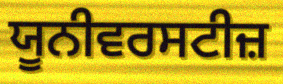
ਯੂਨੀਵਰਸਟੀਜ਼